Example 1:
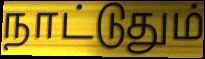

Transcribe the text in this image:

நாட்டுதும்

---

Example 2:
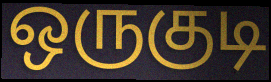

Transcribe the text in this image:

ஒருகுடி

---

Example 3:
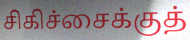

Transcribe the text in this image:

சிகிச்சைக்குத்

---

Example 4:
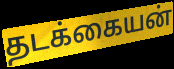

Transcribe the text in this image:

தடக்கையன்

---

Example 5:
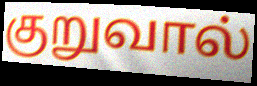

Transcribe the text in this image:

குறுவால்